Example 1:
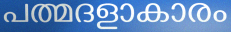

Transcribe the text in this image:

പത്മദളാകാരം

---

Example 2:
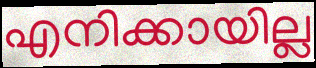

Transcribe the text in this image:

എനിക്കായില്ല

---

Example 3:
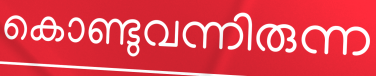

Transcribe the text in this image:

കൊണ്ടുവന്നിരുന്ന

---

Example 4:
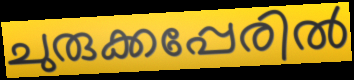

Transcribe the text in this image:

ചുരുക്കപ്പേരിൽ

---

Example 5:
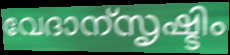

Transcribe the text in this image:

വേദാന്സൃഷ്ടിം